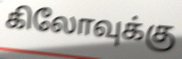
கிலோவுக்கு